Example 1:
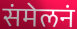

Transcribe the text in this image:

संमेलनं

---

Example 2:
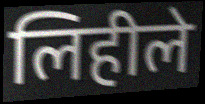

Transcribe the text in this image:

लिहीले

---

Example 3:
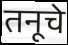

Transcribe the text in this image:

तनूचे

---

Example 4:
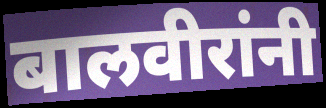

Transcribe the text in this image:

बालवीरांनी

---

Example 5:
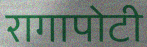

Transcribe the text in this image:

रागापोटी